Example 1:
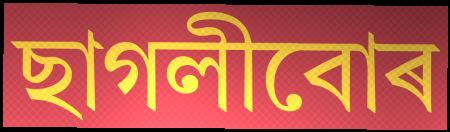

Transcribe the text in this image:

ছাগলীবোৰ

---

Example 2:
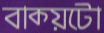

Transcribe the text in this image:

বাক্য়টো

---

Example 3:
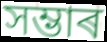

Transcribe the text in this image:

সম্ভাৰ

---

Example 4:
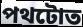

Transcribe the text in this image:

পথটোত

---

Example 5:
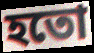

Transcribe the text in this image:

হতো